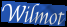
Wilmot